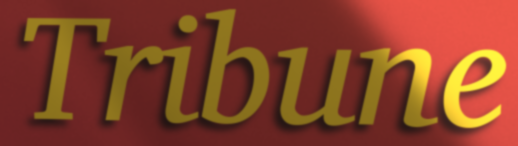
Tribune